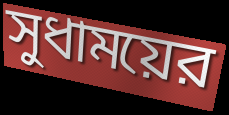
সুধাময়ের